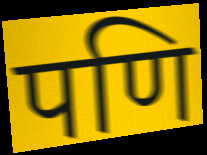
पणि